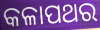
କଳାପଥର